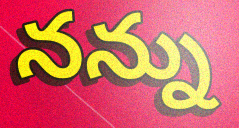
నన్ను